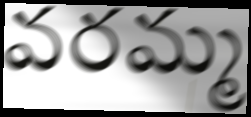
వరమ్మ